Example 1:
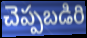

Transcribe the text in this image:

చెప్పబడిరి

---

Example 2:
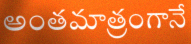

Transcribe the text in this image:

అంతమాత్రంగానే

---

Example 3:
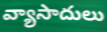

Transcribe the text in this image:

వ్యాసాదులు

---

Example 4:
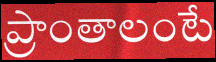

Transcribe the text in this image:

ప్రాంతాలంటే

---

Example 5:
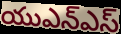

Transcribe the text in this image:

యుఎన్ఎస్